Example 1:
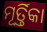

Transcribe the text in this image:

ମୂର୍ତ୍ତିକା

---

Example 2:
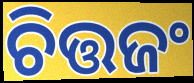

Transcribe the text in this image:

ଚିତ୍ତଜଂ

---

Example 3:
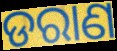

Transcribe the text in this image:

ଡରାଣ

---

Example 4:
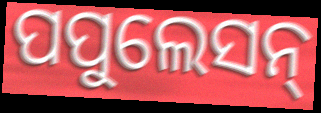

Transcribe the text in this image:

ପପୁଲେସନ୍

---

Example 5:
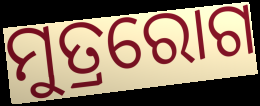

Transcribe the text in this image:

ମୁତ୍ରରୋଗ